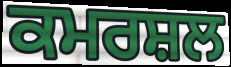
ਕਮਰਸ਼ਲ